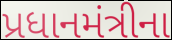
પ્રધાનમંત્રીના